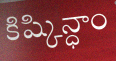
కిష్కిన్ధాం